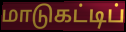
மாடுகட்டிப்